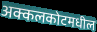
अक्कलकोटमधील